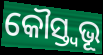
କୌସ୍ତ୍ୱଭୂ